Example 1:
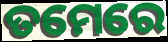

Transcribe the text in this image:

ତମେରେ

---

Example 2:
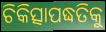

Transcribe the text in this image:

ଚିକିତ୍ସାପଦ୍ଧତିକୁ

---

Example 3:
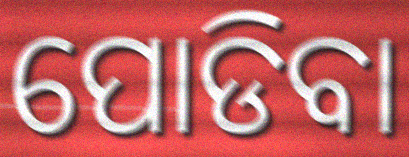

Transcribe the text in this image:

ପୋଡିବା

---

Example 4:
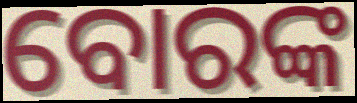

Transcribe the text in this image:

ବୋରଙ୍କ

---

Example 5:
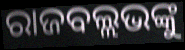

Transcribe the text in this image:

ରାଜବଲ୍ଲଭଙ୍କୁ